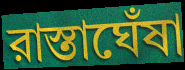
রাস্তাঘেঁষা